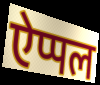
ऐप्पल